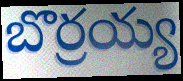
బొర్రయ్య